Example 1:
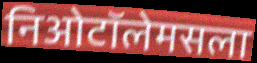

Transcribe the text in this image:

निओटॉलेमसला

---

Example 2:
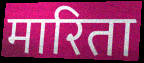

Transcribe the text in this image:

मारिता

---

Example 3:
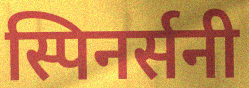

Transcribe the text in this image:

स्पिनर्सनी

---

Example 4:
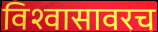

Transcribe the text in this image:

विश्वासावरच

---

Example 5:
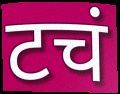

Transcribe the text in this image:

टचं